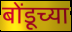
बोंडूच्या